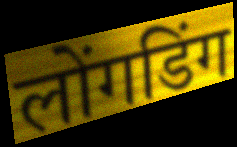
लोंगडिंग